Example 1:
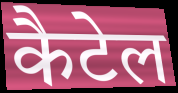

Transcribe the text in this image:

कैटेल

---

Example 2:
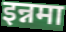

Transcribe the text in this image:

इन्नमा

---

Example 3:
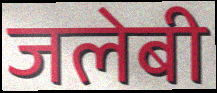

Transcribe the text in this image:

जलेबी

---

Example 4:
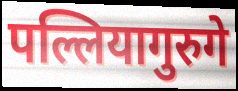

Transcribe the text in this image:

पल्लियागुरुगे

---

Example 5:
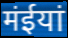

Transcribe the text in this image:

मंईयां